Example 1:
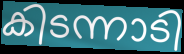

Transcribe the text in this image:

കിടന്നാടി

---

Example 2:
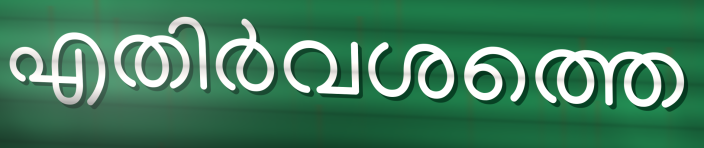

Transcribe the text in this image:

എതിർവശത്തെ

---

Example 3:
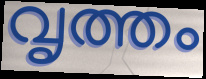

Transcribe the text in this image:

വൃത്തം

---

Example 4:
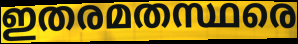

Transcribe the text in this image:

ഇതരമതസ്ഥരെ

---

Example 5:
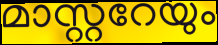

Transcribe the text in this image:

മാസ്റ്ററേയും